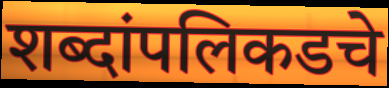
शब्दांपलिकडचे